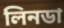
লিনডা